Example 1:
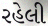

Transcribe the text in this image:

રહેલી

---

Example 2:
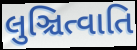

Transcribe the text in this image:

લુઞ્ચિત્વાતિ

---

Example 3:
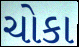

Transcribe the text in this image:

ચોકા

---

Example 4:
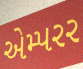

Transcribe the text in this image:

એમ્પરર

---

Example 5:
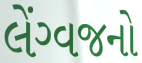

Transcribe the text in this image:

લેંગ્વજનો